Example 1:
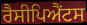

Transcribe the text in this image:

ਰੈਸੀਪਿਐਂਟਸ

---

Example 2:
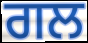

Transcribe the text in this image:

ਗਲ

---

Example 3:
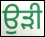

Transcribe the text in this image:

ਉਡ਼ੀ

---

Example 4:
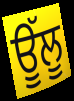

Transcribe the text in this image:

ਊੱਲੂ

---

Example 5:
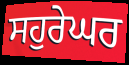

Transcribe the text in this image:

ਸਹੁਰੇਘਰ